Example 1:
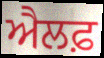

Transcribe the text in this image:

ਐਲਫ਼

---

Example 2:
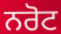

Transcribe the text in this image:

ਨਰੋਟ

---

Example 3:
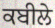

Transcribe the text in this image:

ਕਬੀਲੇ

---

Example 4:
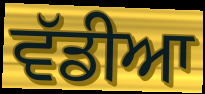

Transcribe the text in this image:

ਵੱਡੀਆ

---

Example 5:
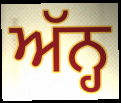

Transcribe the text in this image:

ਅੱਨ੍ਹ